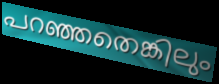
പറഞ്ഞതെങ്കിലും